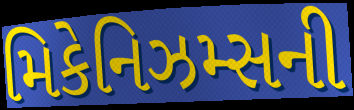
મિકેનિઝમ્સની